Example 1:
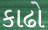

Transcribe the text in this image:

કાઢો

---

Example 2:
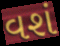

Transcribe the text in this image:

વશં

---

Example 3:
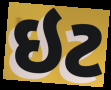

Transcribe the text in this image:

ઇટ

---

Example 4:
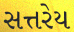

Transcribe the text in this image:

સત્તરેય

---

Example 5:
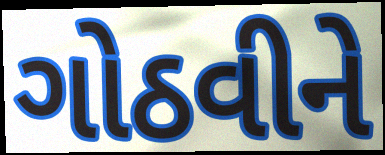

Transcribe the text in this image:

ગોઠવીને